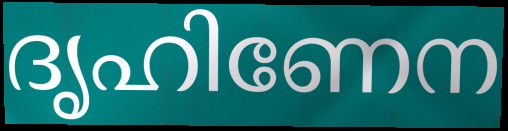
ദൃഹിണേന